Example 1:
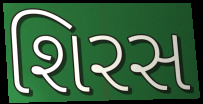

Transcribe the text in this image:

શિરસ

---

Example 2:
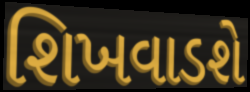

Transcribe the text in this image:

શિખવાડશે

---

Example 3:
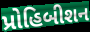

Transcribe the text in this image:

પ્રોહિબીશન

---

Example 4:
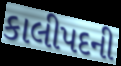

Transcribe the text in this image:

કાલીપદની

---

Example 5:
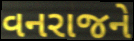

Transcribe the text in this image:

વનરાજને